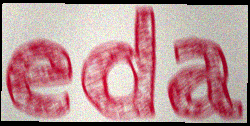
eda